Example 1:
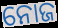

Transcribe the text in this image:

ନୋଜ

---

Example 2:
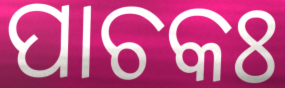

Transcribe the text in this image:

ପାଚକଃ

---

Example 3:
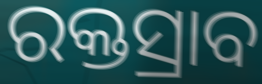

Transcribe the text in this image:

ରକ୍ତସ୍ରାବ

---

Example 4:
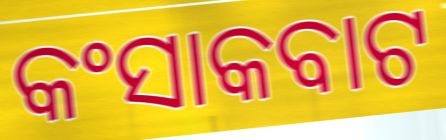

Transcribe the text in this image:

କଂସାକବାଟ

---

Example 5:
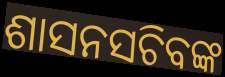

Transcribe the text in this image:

ଶାସନସଚିବଙ୍କ